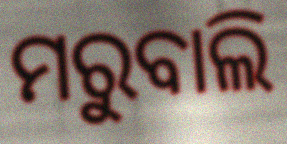
ମରୁବାଲି